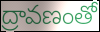
ద్రావణంతో